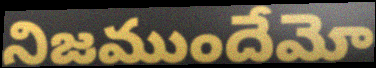
నిజముందేమో